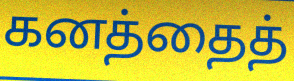
கனத்தைத்